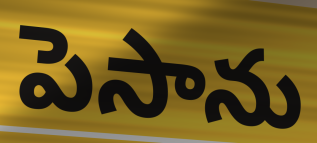
పెసాను